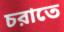
চরাতে